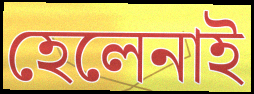
হেলেনাই